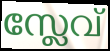
സ്ലേവ്